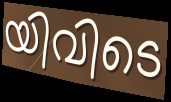
യിവിടെ